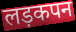
लड़कपन